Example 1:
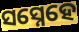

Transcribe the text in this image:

ସସ୍ନେହେ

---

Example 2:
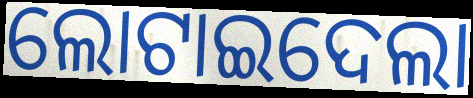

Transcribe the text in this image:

ଲୋଟାଇଦେଲା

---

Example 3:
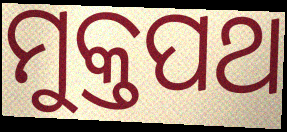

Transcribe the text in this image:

ମୁକ୍ତପଥ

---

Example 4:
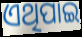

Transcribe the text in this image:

ଏଥିପାଇ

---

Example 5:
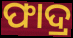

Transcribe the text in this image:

ଫାଦ୍ର